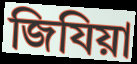
জিযিয়া